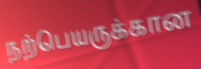
நற்பெயருக்கான